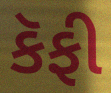
કૅફી